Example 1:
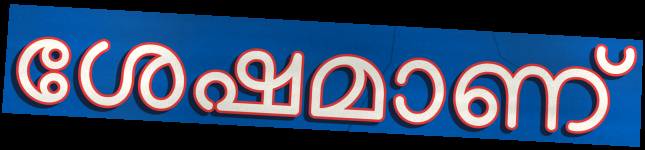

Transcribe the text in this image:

ശേഷമാണ്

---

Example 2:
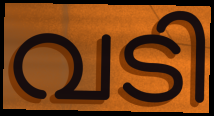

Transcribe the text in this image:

വടി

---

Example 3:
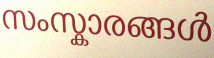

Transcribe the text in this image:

സംസ്കാരങ്ങൾ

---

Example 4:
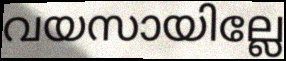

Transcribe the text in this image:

വയസായില്ലേ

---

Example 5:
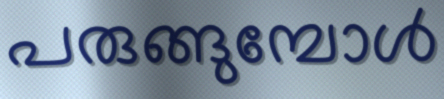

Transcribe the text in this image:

പരുങ്ങുമ്പോൾ